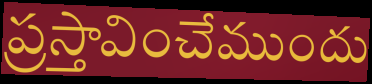
ప్రస్తావించేముందు